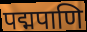
पद्मपाणि